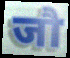
जौ